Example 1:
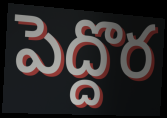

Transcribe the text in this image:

పెద్దొర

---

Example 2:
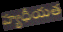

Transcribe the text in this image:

హ్యధీయత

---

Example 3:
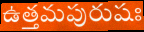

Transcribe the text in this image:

ఉత్తమపురుషః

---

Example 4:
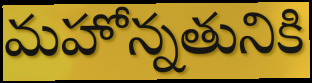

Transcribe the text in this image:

మహోన్నతునికి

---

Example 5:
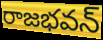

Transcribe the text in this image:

రాజభవన్